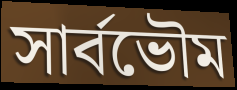
সাৰ্বভৌম